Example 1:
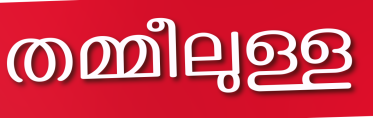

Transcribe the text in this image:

തമ്മീലുള്ള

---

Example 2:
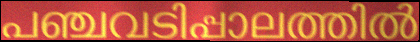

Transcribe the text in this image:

പഞ്ചവടിപ്പാലത്തിൽ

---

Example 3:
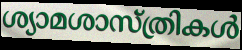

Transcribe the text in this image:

ശ്യാമശാസ്ത്രികൾ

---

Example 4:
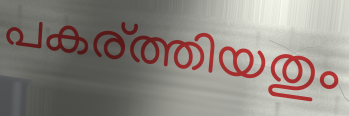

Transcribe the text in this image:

പകര്ത്തിയതും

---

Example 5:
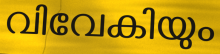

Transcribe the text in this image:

വിവേകിയും